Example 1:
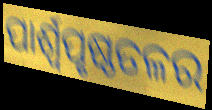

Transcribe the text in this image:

ପାର୍ଶ୍ଵପୃଷ୍ଠତଳର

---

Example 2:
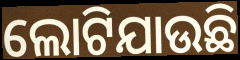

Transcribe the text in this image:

ଲୋଟିଯାଉଛି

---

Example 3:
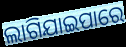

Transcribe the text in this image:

ଲାଗିଯାଇପାରେ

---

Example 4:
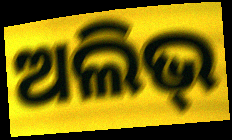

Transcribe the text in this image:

ଅଲିଭ୍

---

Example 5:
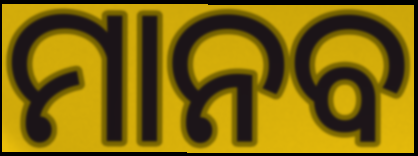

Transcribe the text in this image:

ମାନବ